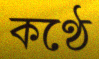
কণ্ঠে